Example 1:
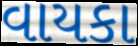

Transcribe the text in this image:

વાયકા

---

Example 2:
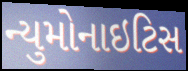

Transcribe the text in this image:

ન્યુમોનાઇટિસ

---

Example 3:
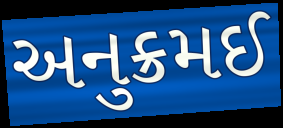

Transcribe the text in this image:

અનુક્રમઈ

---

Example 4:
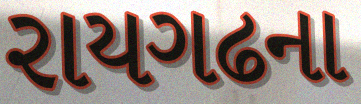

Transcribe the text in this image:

રાયગઢના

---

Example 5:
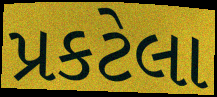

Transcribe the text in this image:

પ્રકટેલા